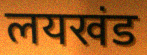
लयखंड